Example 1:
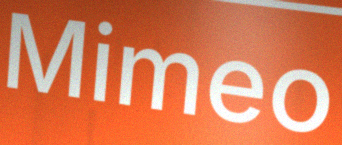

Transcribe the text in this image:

Mimeo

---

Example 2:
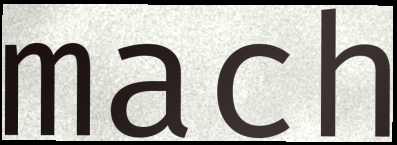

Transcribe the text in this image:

mach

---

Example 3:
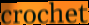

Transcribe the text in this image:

crochet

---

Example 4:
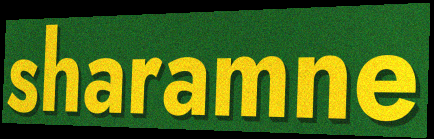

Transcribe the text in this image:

sharamne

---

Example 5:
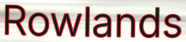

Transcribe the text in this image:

Rowlands